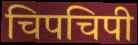
चिपचिपी